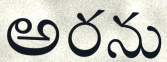
అరను